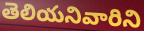
తెలియనివారిని